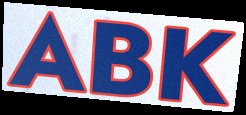
ABK